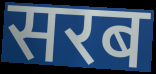
सरब